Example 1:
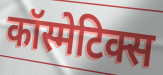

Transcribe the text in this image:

कॉस्मेटिक्स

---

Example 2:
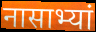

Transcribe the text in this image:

नासाभ्यां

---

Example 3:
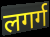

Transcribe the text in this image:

लगर्ग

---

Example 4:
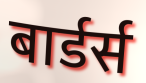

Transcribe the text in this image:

बार्डर्स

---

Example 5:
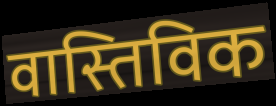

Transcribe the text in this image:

वास्तिविक